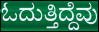
ಓದುತ್ತಿದ್ದೆವು